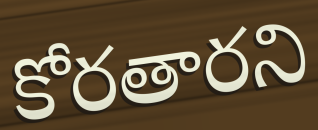
కోరతారని